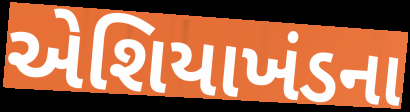
એશિયાખંડના